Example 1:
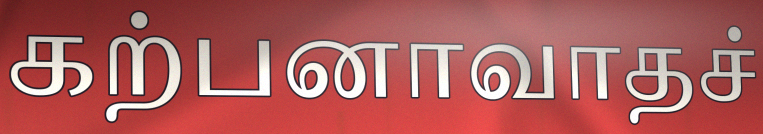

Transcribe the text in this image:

கற்பனாவாதச்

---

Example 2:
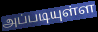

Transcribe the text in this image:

அப்படியுள்ள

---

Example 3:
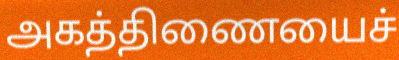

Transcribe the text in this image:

அகத்திணையைச்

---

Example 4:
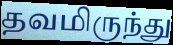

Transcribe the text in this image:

தவமிருந்து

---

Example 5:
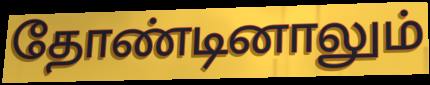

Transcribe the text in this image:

தோண்டினாலும்